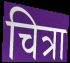
चित्रा